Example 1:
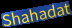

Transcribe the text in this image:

Shahadat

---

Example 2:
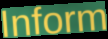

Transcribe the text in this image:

Inform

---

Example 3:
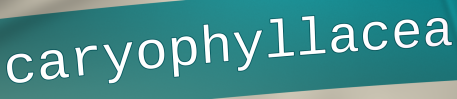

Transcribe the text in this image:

caryophyllacea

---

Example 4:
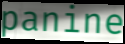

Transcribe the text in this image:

panine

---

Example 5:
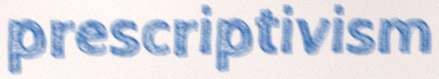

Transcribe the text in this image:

prescriptivism